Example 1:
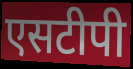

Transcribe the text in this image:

एसटीपी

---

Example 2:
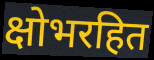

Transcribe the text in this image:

क्षोभरहित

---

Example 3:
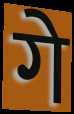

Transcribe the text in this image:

गे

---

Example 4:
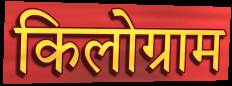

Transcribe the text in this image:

किलोग्राम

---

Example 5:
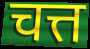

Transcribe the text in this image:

चत्त